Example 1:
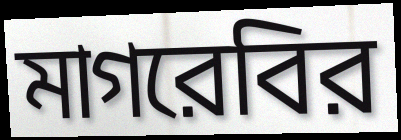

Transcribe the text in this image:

মাগরেবির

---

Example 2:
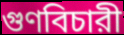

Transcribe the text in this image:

গুণবিচারী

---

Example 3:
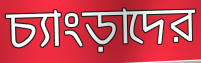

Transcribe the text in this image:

চ্যাংড়াদের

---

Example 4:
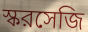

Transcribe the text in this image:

স্করসেজি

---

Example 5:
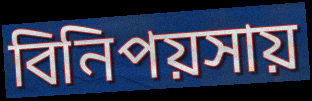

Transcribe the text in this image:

বিনিপয়সায়